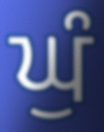
ਘੁੰ